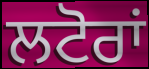
ਲਟੋਰਾਂ